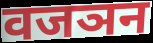
वजञन